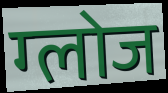
ग्लोज